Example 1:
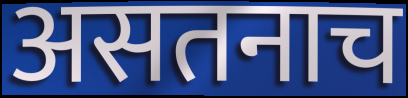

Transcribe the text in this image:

असतनाच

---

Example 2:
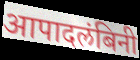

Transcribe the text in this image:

आपादलंबिनी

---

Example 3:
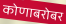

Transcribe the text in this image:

कोणाबरोबर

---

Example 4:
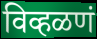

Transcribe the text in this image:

विव्हळणं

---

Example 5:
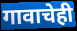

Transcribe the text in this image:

गावाचेही